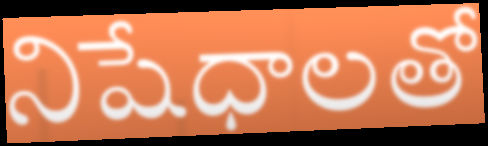
నిషేధాలతో